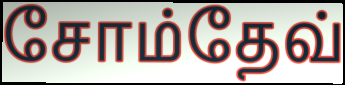
சோம்தேவ்